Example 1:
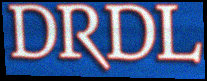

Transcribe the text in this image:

DRDL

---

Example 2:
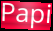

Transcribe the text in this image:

Papi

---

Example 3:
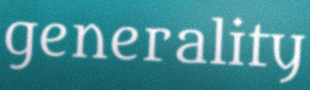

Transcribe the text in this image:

generality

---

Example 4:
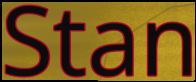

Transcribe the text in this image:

Stan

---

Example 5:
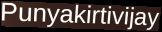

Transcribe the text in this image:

Punyakirtivijay